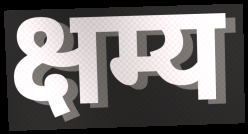
क्षम्य